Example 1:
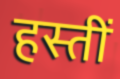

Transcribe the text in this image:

हस्तीं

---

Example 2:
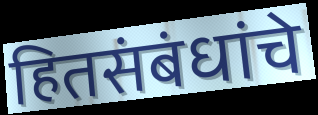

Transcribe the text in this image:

हितसंबंधांचे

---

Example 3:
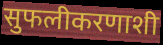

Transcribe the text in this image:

सुफलीकरणाशी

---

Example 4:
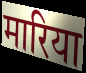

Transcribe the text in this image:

मारिया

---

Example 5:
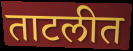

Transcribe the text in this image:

ताटलीत